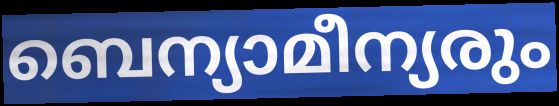
ബെന്യാമീന്യരും